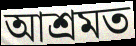
আশ্ৰমত